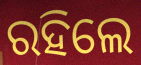
ରହିଲେ